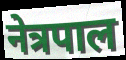
नेत्रपाल